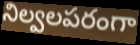
నిల్వలపరంగా